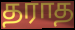
தராத